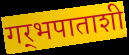
गर्भपाताशी